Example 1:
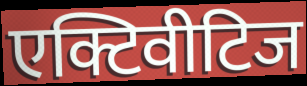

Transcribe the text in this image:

एक्टिवीटिज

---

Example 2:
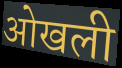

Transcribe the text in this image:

ओखली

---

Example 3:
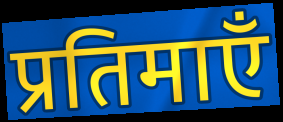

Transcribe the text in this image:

प्रतिमाएँ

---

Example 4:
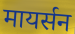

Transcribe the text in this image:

मायर्सन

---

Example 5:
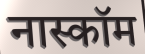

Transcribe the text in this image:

नास्कॉम